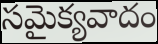
సమైక్యవాదం